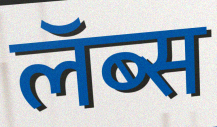
लॅब्स